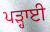
ਪੜ੍ਹਾਈ